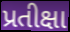
પ્રતીક્ષા